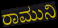
ರಾಮುನಿ